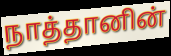
நாத்தானின்